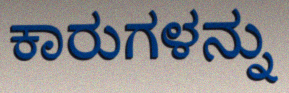
ಕಾರುಗಳನ್ನು